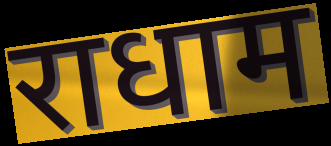
राधाम